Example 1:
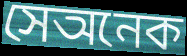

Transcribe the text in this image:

সেঅনেক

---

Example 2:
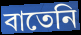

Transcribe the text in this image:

বাতেনি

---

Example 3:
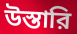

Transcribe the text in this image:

উস্তারি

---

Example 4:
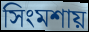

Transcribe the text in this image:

সিংমশায়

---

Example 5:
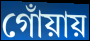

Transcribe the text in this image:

গোঁয়ায়